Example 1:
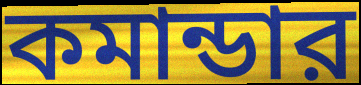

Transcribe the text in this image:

কমান্ডার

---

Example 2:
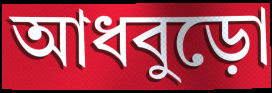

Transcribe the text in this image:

আধবুড়ো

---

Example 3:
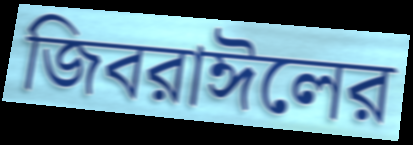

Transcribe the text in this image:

জিবরাঈলের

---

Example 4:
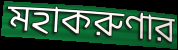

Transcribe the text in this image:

মহাকরুণার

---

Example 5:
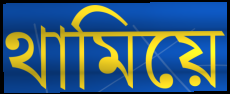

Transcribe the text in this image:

থামিয়ে